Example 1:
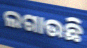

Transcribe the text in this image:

ଲଗାଉଛି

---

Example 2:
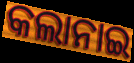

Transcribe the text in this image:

କଲାନାଇ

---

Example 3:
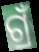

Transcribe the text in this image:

ଗ୍ରଁ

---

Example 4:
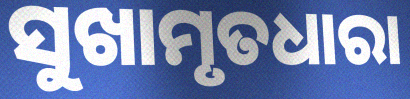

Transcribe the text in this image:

ସୁଖାମୃତଧାରା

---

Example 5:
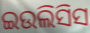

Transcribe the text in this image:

ଇଉଲିସିସ